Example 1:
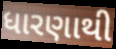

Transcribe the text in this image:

ધારણાથી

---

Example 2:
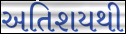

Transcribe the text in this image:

અતિશયથી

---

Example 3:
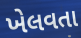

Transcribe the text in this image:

ખેલવતા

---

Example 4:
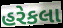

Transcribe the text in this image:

હરેકલા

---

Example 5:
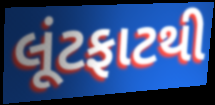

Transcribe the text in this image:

લૂંટફાટથી